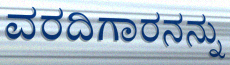
ವರದಿಗಾರನನ್ನು